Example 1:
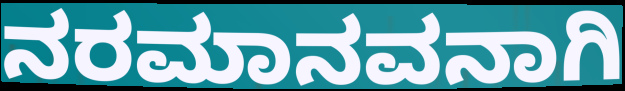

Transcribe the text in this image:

ನರಮಾನವನಾಗಿ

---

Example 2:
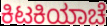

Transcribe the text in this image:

ಕಿಟಕಿಯಾಚೆ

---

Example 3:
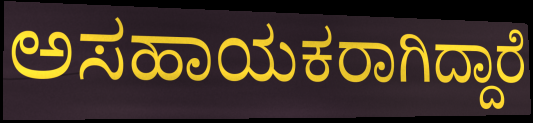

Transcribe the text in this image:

ಅಸಹಾಯಕರಾಗಿದ್ದಾರೆ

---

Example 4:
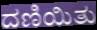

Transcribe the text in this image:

ದಣಿಯಿತು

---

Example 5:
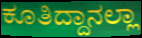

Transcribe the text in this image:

ಕೂತಿದ್ದಾನಲ್ಲಾ